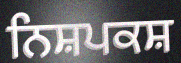
ਨਿਸ਼ਪਕਸ਼